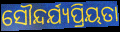
ସୌନ୍ଦର୍ଯ୍ୟପ୍ରିୟତା